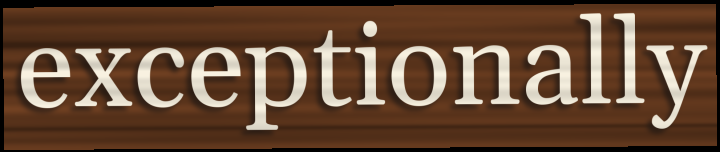
exceptionally